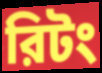
রিটং